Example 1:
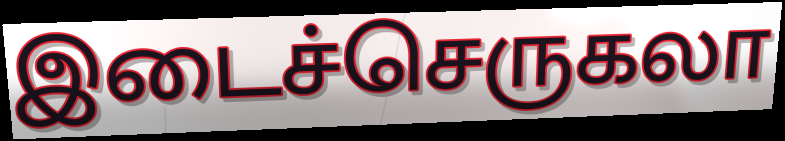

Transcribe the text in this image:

இடைச்செருகலா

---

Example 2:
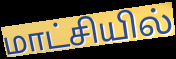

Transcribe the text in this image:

மாட்சியில்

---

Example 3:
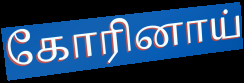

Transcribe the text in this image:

கோரினாய்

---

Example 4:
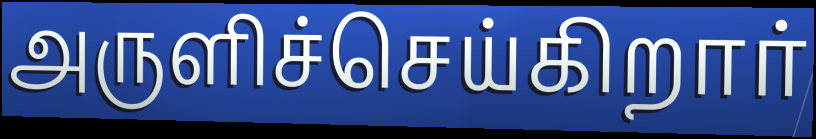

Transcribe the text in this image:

அருளிச்செய்கிறார்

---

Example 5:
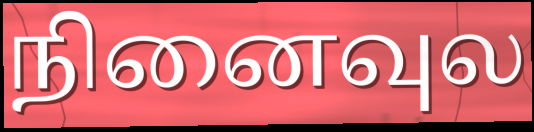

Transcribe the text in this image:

நினைவுல